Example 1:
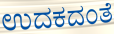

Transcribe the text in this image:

ಉದಕದಂತೆ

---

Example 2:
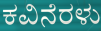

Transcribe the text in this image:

ಕವಿನೆರಳು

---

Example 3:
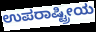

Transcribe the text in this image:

ಉಪರಾಷ್ಟ್ರೀಯ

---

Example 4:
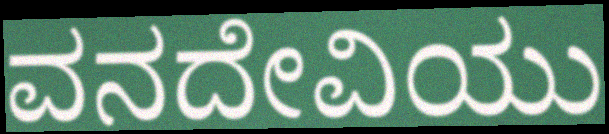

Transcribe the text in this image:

ವನದೇವಿಯು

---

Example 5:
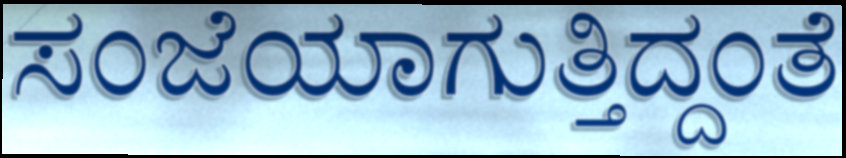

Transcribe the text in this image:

ಸಂಜೆಯಾಗುತ್ತಿದ್ದಂತೆ